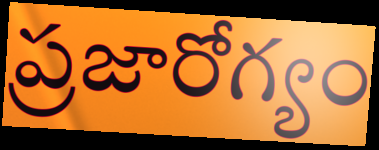
ప్రజారోగ్యం